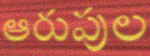
ఆరుపుల